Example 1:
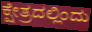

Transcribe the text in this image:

ಕ್ಷೇತ್ರದಲ್ಲಿಂದು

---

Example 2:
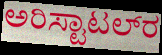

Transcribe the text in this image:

ಅರಿಸ್ಟಾಟಲ್‍ರ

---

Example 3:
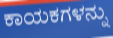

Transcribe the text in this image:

ಕಾಯಕಗಳನ್ನು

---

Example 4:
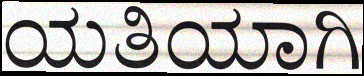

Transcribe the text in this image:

ಯತಿಯಾಗಿ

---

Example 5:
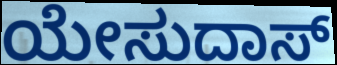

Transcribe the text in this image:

ಯೇಸುದಾಸ್